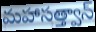
మహాసత్త్వాన్